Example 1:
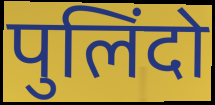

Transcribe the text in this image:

पुलिंदो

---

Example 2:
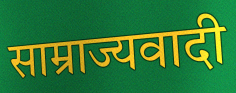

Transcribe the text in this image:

साम्राज्‍यवादी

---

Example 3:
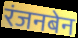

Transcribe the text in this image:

रंजनबेन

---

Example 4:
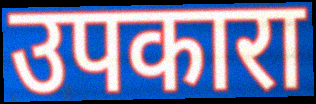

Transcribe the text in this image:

उपकारा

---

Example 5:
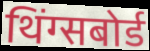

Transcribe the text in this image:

थिंग्सबोर्ड